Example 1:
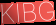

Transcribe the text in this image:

KIBG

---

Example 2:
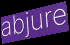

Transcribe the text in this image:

abjure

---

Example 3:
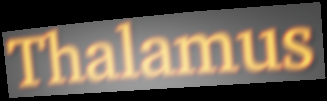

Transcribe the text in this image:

Thalamus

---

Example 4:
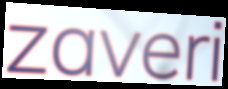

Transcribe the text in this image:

zaveri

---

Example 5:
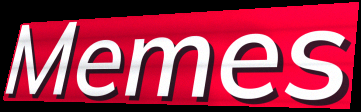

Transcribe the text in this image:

Memes